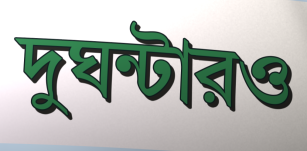
দুঘন্টারও